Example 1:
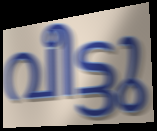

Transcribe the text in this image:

വീട്ടു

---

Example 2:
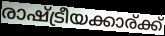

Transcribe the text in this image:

രാഷ്ട്രീയക്കാര്ക്ക്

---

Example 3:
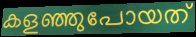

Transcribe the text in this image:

കളഞ്ഞുപോയത്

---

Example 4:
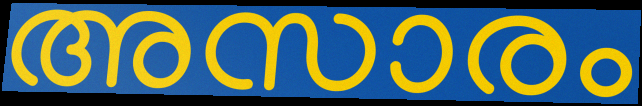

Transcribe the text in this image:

അസാരം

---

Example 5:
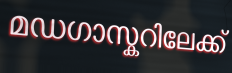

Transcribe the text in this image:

മഡഗാസ്കറിലേക്ക്